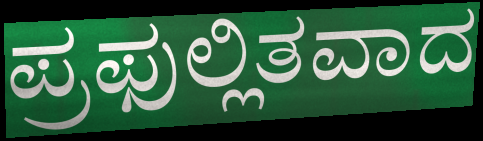
ಪ್ರಫುಲ್ಲಿತವಾದ